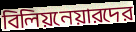
বিলিয়নেয়ারদের